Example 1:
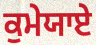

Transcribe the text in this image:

ਕੁਮੇਯਾਏ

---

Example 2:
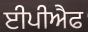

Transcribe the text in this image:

ਈਪੀਐਫ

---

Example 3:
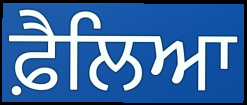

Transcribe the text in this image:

ਫ਼ੈਲਿਆ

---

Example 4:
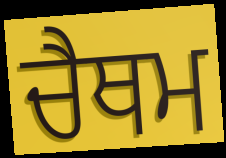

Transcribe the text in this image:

ਚੈਥਮ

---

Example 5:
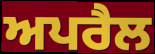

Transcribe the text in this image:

ਅਪਰੈਲ